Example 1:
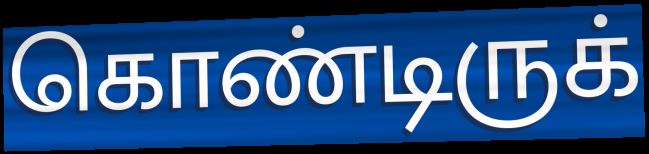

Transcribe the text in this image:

கொண்டிருக்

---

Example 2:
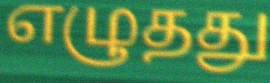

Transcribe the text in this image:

எழுதது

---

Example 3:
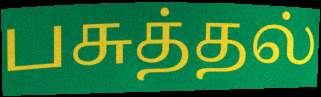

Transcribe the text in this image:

பசுத்தல்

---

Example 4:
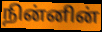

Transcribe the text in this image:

நின்னின்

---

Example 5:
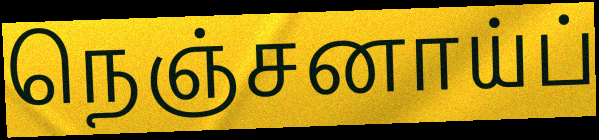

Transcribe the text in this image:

நெஞ்சனாய்ப்